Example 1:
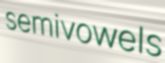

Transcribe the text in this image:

semivowels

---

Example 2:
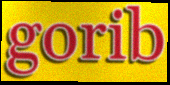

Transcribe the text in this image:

gorib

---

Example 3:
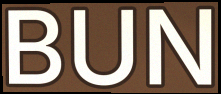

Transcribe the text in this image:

BUN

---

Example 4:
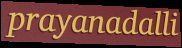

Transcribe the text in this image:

prayanadalli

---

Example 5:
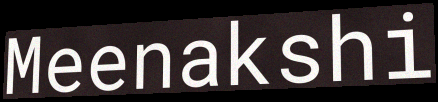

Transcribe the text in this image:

Meenakshi